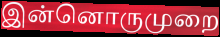
இன்னொருமுறை